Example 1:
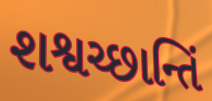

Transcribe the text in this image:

શશ્વચ્છાન્તિં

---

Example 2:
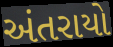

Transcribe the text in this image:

અંતરાયો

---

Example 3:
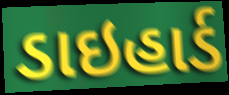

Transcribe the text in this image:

ડાઇહાર્ડ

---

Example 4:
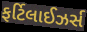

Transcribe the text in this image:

ફર્ટિલાઈઝર્સ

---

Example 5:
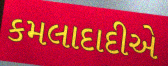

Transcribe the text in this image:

કમલાદાદીએ